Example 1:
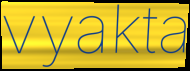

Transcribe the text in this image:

vyakta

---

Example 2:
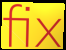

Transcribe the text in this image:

fix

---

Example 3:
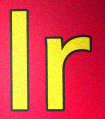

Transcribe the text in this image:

Ir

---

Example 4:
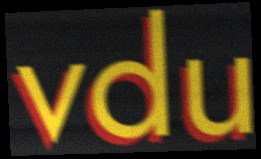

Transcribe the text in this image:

vdu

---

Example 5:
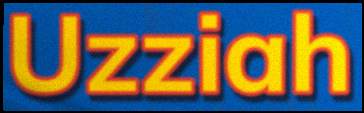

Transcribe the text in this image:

Uzziah